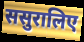
ससुरालिए